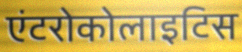
एंटरोकोलाइटिस